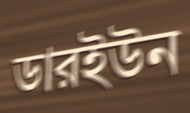
ডারইউন